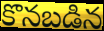
కొనబడిన